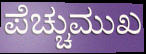
ಪೆಚ್ಚುಮುಖ